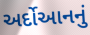
અર્દોઆનનું